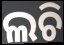
ଲଚି